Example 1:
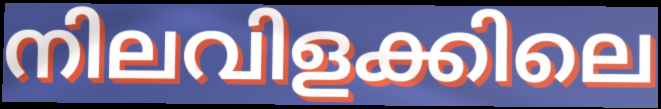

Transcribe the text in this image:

നിലവിളക്കിലെ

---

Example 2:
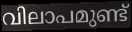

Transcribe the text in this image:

വിലാപമുണ്ട്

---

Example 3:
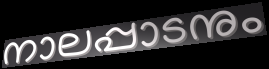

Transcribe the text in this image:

നാലപ്പാടനും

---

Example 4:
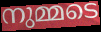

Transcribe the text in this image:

നുമ്മടെ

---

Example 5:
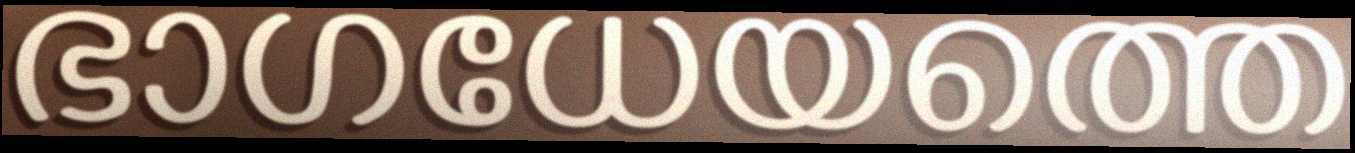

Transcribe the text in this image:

ഭാഗധേയത്തെ